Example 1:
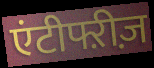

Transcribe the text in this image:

एंटीफ्ऱीज़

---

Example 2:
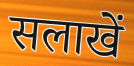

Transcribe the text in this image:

सलाखें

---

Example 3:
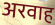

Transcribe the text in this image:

अरवाह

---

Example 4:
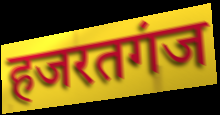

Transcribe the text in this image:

हजरतगंज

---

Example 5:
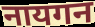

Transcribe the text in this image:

नायगन